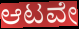
ಆಟವೇ